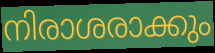
നിരാശരാക്കും